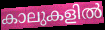
കാലുകളിൽ